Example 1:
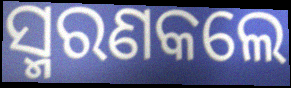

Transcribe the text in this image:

ସ୍ମରଣକଲେ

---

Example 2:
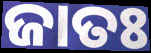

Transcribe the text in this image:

ଜାତଃ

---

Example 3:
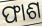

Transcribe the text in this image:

ଫାଶ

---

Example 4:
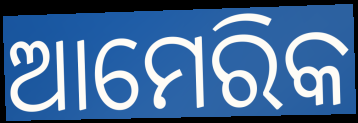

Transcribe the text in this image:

ଆମେରିକ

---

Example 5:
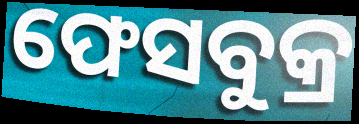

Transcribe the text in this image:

ଫେସବୁକ୍ର